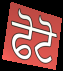
ਫੋਟੋ